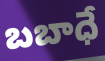
బబాధే